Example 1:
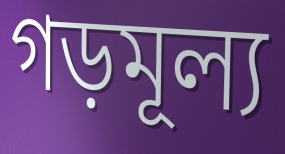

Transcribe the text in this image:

গড়মূল্য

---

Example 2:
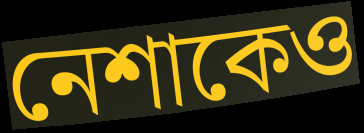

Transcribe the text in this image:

নেশাকেও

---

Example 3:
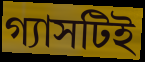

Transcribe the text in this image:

গ্যাসটিই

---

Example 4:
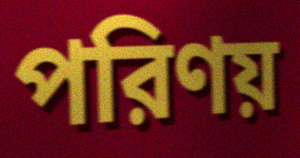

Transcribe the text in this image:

পরিণয়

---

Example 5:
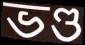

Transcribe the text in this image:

ভণ্ড